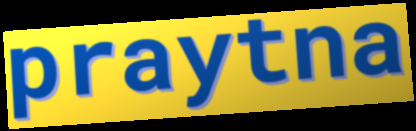
praytna